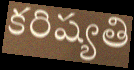
కరిష్యతి